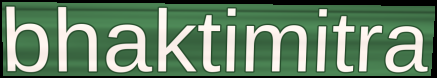
bhaktimitra